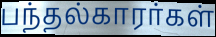
பந்தல்காரர்கள்